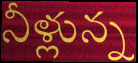
నీళ్లున్న